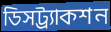
ডিসট্র্যাকশন